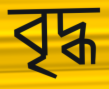
বৃদ্ধ